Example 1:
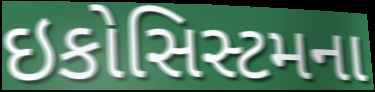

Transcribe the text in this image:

ઇકોસિસ્ટમના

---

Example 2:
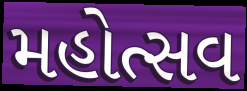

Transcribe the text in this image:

મહોત્સવ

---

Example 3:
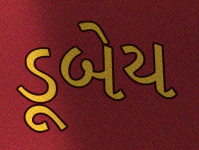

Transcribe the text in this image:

ડૂબેય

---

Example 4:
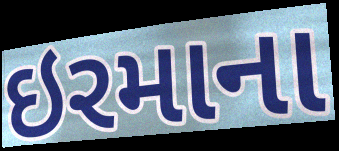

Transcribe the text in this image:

ઇરમાના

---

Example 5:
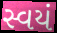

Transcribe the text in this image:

સ્વયં